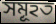
সমূহত